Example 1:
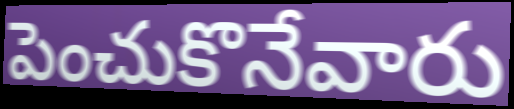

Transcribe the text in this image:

పెంచుకొనేవారు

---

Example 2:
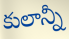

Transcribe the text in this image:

కులాన్నీ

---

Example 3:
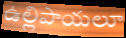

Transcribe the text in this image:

ఉల్లిపాయలూ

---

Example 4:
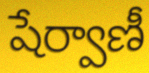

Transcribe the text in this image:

షేర్వాణీ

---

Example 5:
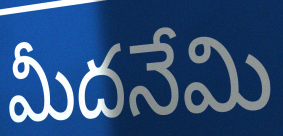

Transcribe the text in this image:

మీదనేమి